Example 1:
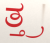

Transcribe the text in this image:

ತ್ತ್ರ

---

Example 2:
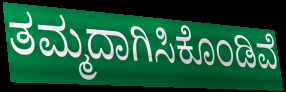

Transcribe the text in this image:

ತಮ್ಮದಾಗಿಸಿಕೊಂಡಿವೆ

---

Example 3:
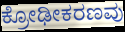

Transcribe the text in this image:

ಕ್ರೋಢೀಕರಣವು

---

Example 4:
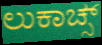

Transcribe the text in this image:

ಲುಕಾಚ್ಸ್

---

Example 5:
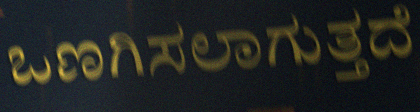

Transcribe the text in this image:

ಒಣಗಿಸಲಾಗುತ್ತದೆ